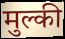
मुल्की